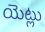
యెట్లు